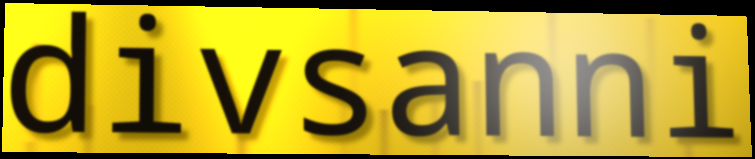
divsanni